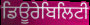
ਡਿਊਰੇਬਿਲਿਟੀ